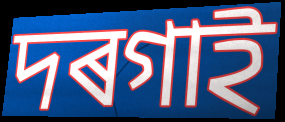
দৰগাই